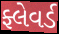
ફ્લેવર્ડ